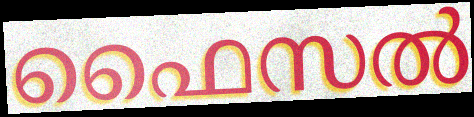
ഫൈസൽ